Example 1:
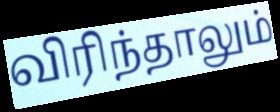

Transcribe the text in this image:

விரிந்தாலும்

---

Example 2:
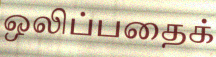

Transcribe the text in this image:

ஒலிப்பதைக்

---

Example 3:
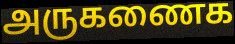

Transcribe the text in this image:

அருகணைக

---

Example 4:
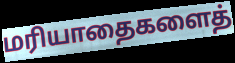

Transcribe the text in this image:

மரியாதைகளைத்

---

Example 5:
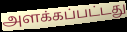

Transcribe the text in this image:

அளக்கப்பட்டது